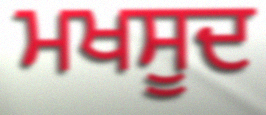
ਮਖਸੂਦ